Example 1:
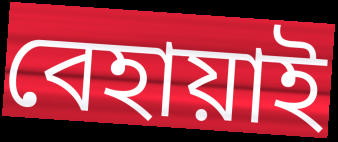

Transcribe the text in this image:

বেহায়াই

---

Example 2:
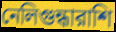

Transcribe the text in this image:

নেলিগুন্ধারাশি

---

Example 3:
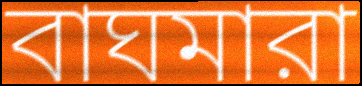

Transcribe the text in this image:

বাঘমারা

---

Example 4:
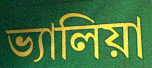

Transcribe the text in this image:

ভ্যালিয়া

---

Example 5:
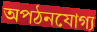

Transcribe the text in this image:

অপঠনযোগ্য